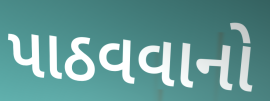
પાઠવવાનો